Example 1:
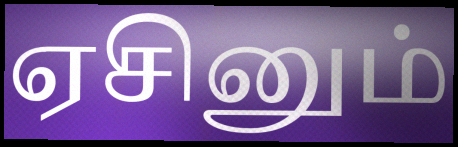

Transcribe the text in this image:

ஏசினும்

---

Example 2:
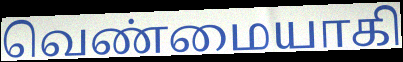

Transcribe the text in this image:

வெண்மையாகி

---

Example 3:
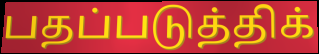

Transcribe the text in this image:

பதப்படுத்திக்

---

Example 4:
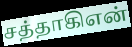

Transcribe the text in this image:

சத்தாகிஎன்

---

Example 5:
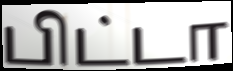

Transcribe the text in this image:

பிட்டா